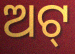
ଅଟ୍